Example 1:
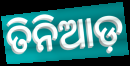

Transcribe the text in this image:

ତିନିଆଡ଼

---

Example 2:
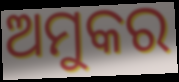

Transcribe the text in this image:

ଅମୁକର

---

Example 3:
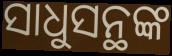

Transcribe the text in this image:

ସାଧୁସନ୍ଥଙ୍କ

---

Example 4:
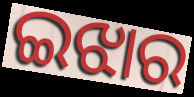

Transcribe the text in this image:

ଇଝାର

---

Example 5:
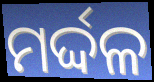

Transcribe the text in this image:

ମର୍ଦ୍ଦଳ